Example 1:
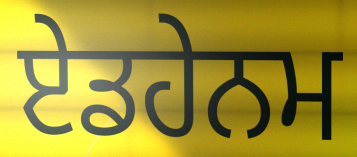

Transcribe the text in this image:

ਏਡਹੇਨਮ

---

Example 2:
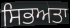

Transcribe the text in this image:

ਸਿਭਅਤਾ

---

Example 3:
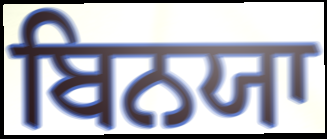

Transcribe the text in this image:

ਬਿਨਯਾ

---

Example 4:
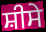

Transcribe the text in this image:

ਸ਼ੀਸੇ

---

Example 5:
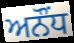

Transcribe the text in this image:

ਅਨੌਂਧ